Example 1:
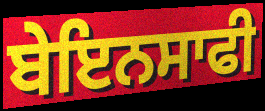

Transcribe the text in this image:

ਬੇਇਨਸਾਫੀ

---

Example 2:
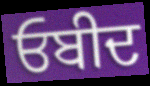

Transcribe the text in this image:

ਓਬੀਦ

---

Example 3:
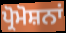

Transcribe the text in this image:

ਪ੍ਰੋਮੋਸ਼ਨਾਂ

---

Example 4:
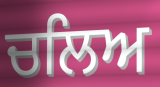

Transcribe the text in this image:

ਚਲਿਅ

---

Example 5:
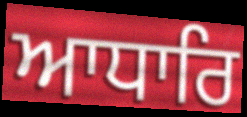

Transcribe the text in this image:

ਆਧਾਰਿ